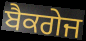
ਬੈਕਗੇਜ